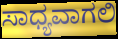
ಸಾಧ್ಯವಾಗಲಿ